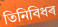
তিনিবিধৰ